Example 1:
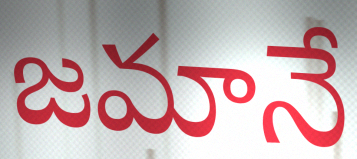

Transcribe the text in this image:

జమానే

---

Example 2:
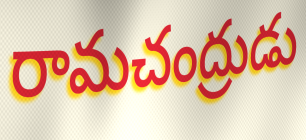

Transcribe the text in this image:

రామచంద్రుడు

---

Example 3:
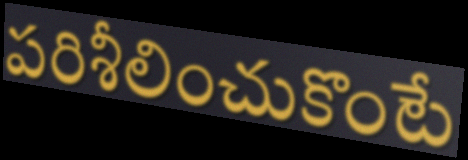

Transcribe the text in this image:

పరిశీలించుకొంటే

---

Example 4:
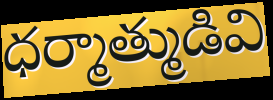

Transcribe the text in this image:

ధర్మాత్ముడివి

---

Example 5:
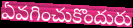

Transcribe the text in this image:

ఏవగించుకొందురు